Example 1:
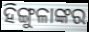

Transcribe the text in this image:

ହିଙ୍ଗୁଳାଙ୍କର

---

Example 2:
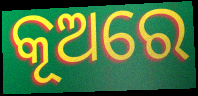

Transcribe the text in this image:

କୂଅରେ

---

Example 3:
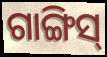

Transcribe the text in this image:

ଗାଙ୍ଗିସ୍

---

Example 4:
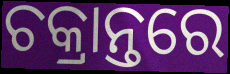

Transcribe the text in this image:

ଚକ୍ରାନ୍ତରେ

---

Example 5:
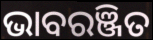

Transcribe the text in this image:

ଭାବରଞ୍ଜିତ